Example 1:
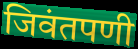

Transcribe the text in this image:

जिवंतपणी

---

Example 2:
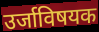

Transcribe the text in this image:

उर्जाविषयक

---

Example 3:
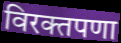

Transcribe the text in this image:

विरक्तपणा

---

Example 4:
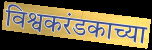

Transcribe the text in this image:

विश्वकरंडकाच्या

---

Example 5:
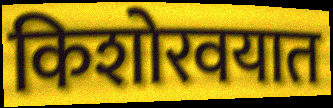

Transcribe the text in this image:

किशोरवयात